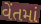
વેંતમાં